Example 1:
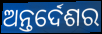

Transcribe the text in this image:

ଅନ୍ତର୍ଦେଶର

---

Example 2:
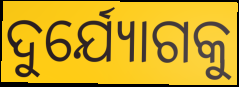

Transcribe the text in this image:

ଦୁର୍ଯ୍ୟୋଗକୁ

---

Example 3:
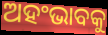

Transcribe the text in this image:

ଅହଂଭାବକୁ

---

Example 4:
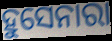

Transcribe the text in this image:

ହୁସେନାରା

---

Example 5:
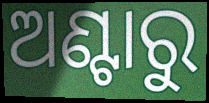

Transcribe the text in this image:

ଅଣ୍ଟାରୁ